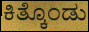
ಕಿತ್ಕೊಂಡು